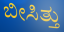
ಬೀಸಿತ್ತು